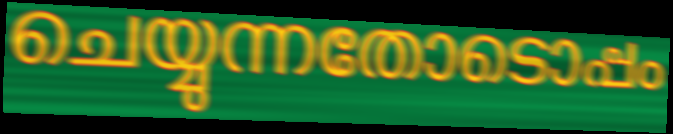
ചെയ്യുന്നതോടൊപ്പം